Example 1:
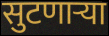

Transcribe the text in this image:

सुटणाऱ्या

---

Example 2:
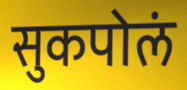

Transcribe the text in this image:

सुकपोलं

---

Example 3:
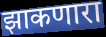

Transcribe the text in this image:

झाकणारा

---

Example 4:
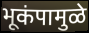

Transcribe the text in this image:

भूकंपामुळे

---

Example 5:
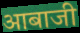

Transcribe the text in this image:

आबाजी